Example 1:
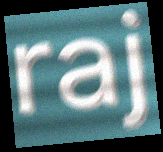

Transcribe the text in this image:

raj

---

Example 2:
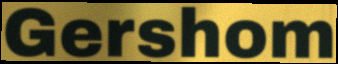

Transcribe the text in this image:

Gershom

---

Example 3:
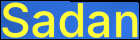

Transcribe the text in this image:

Sadan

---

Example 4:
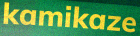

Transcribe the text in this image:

kamikaze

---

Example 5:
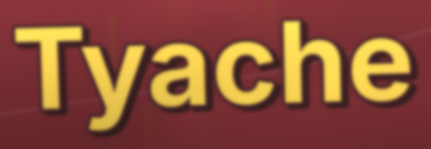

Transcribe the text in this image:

Tyache